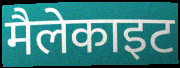
मैलेकाइट